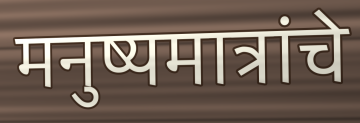
मनुष्यमात्रांचे